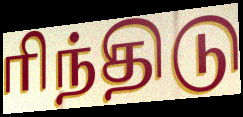
ரிந்திடு